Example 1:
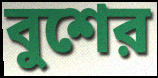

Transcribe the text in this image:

বুশের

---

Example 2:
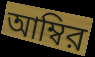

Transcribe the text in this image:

আম্বির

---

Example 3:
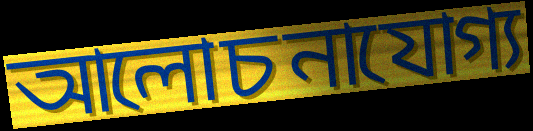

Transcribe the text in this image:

আলোচনাযোগ্য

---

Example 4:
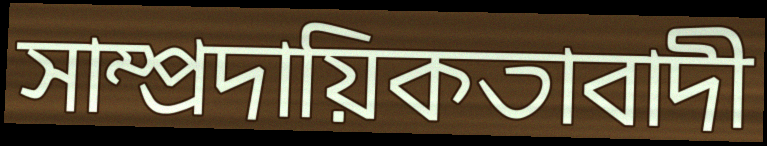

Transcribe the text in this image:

সাম্প্রদায়িকতাবাদী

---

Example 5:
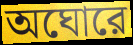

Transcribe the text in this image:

অঘোরে